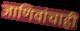
जाणिवांचाही